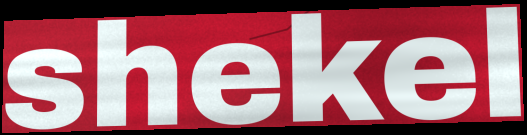
shekel